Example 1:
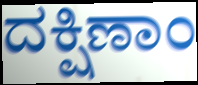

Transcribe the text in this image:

ದಕ್ಷಿಣಾಂ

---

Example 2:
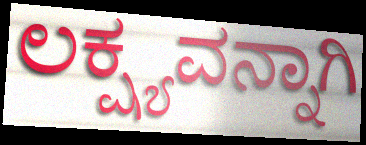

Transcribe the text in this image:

ಲಕ್ಷ್ಯವನ್ನಾಗಿ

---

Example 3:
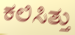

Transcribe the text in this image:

ಕಲಿಸಿತ್ತು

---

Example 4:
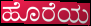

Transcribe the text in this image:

ಹೊರೆಯ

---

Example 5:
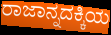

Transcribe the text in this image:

ರಾಜಾನ್ನದಕ್ಕಿಯ